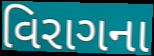
વિરાગના